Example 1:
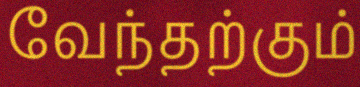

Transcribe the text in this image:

வேந்தற்கும்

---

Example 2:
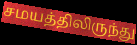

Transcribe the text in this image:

சமயத்திலிருந்து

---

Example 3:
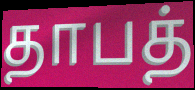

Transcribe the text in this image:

தாபத்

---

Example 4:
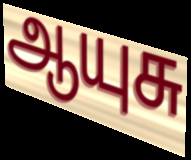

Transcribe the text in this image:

ஆயுசு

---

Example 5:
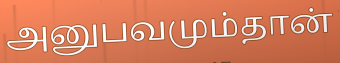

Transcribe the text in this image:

அனுபவமும்தான்